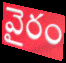
వైరం